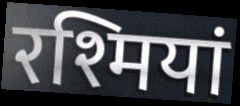
रश्मियां